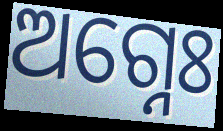
ଅଗ୍ନେଃ